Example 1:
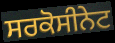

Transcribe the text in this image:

ਸਰਕੋਸੀਨੇਟ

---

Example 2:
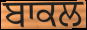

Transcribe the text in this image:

ਬਾਕਲ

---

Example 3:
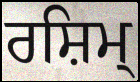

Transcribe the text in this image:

ਰਸ਼ਿਮ੍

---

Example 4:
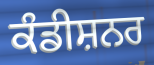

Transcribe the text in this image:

ਕੰਡੀਸ਼ਨਰ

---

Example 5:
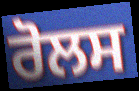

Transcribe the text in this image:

ਰੋਲਸ